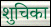
शुचिका